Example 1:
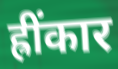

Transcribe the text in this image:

ह्रींकार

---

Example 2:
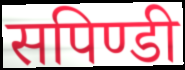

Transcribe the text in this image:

सपिण्डी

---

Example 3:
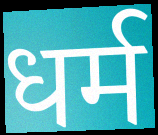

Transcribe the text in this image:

धर्म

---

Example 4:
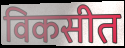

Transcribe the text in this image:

विकसीत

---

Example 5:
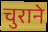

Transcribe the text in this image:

चुराने